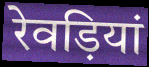
रेवड़ियां